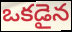
ఒకడైన